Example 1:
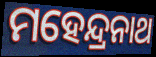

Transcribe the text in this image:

ମହେନ୍ଦ୍ରନାଥ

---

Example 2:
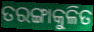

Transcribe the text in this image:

ତରଙ୍ଗାକୁଳିତ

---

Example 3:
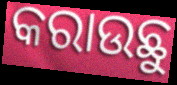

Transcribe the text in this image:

କରାଉଛୁ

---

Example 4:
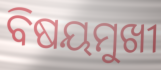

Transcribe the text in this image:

ବିଷୟମୁଖୀ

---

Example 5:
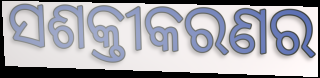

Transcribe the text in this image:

ସଶକ୍ତୀକରଣର